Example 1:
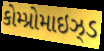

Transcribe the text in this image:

કોમ્પ્રોમાઇઝ્ડ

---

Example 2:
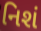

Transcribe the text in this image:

નિશં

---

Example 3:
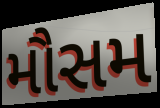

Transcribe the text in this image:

મૌસમ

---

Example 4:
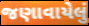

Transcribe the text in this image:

જણાવાયેલું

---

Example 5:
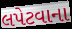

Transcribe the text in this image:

લપેટવાના